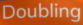
Doubling